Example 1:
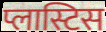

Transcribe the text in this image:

प्लास्टिस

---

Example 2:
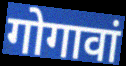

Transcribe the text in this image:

गोगावां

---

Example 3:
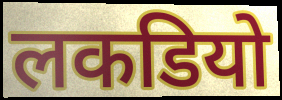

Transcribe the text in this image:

लकडियो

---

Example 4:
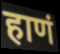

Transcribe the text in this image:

हाणं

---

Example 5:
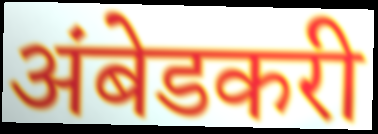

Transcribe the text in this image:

अंबेडकरी